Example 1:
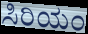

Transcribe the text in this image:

ಸಿರಿಯಂ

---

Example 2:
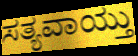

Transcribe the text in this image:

ಸತ್ಯವಾಯ್ತು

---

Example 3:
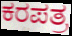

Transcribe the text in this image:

ಕರಪತ್ರ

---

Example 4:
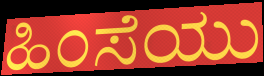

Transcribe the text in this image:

ಹಿಂಸೆಯು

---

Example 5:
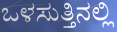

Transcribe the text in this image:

ಒಳಸುತ್ತಿನಲ್ಲಿ